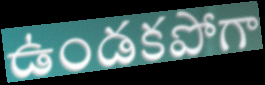
ఉండకపోగా